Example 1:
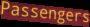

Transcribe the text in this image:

Passengers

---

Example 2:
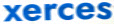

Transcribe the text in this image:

xerces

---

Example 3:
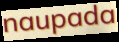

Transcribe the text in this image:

naupada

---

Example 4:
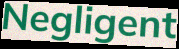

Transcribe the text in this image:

Negligent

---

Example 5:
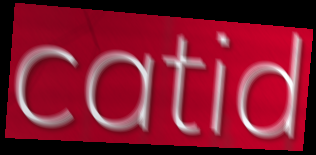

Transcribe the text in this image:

catid